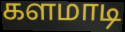
களமாடி